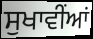
ਸੁਖਾਵੀਂਆਂ